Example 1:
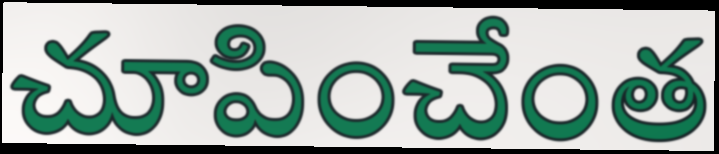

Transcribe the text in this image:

చూపించేంత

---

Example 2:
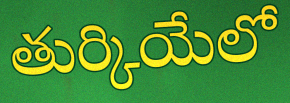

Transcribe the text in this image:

తుర్కియేలో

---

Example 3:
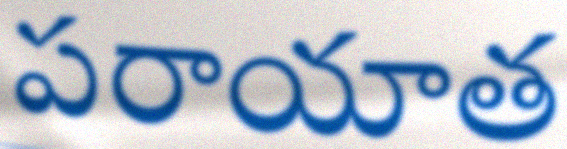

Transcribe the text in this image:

పరాయాత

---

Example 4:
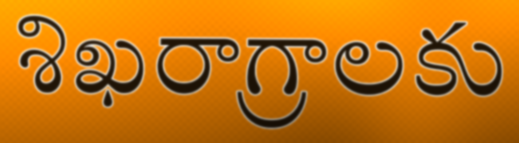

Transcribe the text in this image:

శిఖరాగ్రాలకు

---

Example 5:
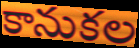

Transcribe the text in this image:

కానుకల